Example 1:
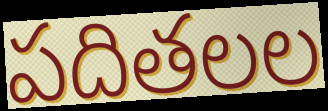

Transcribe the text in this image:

పదితలల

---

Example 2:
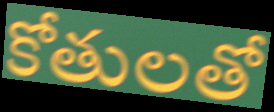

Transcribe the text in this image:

కోతులతో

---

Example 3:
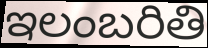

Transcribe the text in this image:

ఇలంబరితి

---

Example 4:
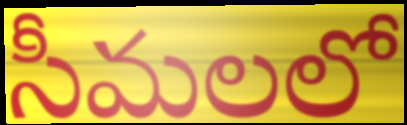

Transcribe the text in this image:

సీమలలో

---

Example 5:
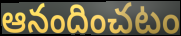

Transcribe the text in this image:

ఆనందించటం